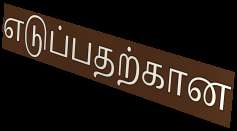
எடுப்பதற்கான